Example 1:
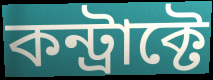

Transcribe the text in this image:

কন্ট্রাক্টে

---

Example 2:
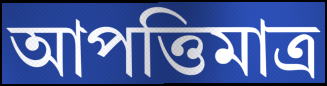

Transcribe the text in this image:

আপত্তিমাত্র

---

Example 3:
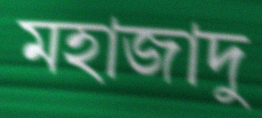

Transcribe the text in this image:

মহাজাদু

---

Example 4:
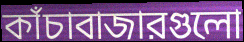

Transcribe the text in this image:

কাঁচাবাজারগুলো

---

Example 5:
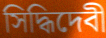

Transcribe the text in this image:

সিদ্ধিদেবী